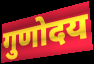
गुणोदय